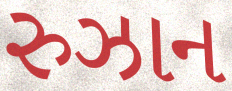
રુઝાન